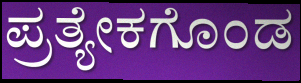
ಪ್ರತ್ಯೇಕಗೊಂಡ